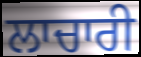
ਲਾਚਾਰੀ